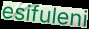
esifuleni